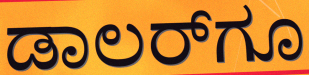
ಡಾಲರ್‌ಗೂ